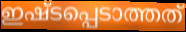
ഇഷ്ടപ്പെടാത്തത്